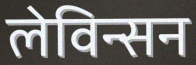
लेविन्सन